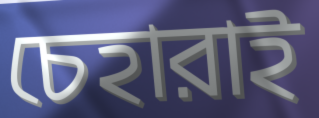
চেহারাই